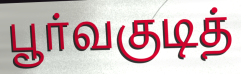
பூர்வகுடித்